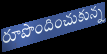
రూపొందించుకున్న